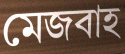
মেজবাহ